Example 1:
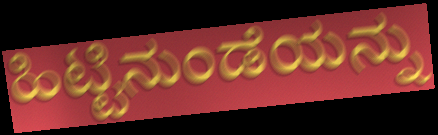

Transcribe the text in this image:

ಹಿಟ್ಟಿನುಂಡೆಯನ್ನು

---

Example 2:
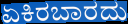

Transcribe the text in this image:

ಏಕಿರಬಾರದು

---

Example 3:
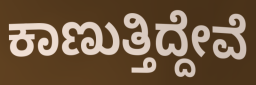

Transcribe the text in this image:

ಕಾಣುತ್ತಿದ್ದೇವೆ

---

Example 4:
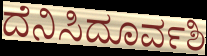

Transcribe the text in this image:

ದೆನಿಸಿದೂರ್ವಶಿ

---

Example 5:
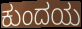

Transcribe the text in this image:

ಕುಂದಯ